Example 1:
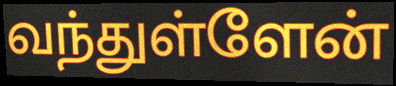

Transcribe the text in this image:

வந்துள்ளேன்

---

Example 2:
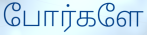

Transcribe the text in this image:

போர்களே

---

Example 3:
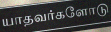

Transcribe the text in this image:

யாதவர்களோடு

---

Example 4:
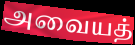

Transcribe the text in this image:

அவையத்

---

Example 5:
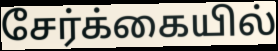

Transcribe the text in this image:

சேர்க்கையில்